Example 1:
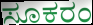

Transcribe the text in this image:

ಸೂಕರಂ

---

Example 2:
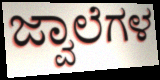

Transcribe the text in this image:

ಜ್ವಾಲೆಗಳ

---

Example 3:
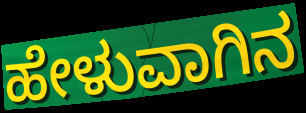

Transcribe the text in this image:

ಹೇಳುವಾಗಿನ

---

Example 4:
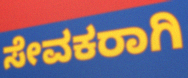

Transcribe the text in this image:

ಸೇವಕರಾಗಿ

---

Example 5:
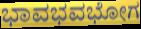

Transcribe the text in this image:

ಭಾವಭವಭೋಗ